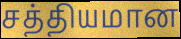
சத்தியமான